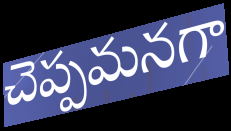
చెప్పమనగా